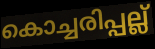
കൊച്ചരിപ്പല്ല്